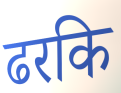
ढरकि